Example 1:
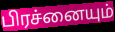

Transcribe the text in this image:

பிரச்னையும்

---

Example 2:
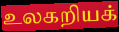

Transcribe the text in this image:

உலகறியக்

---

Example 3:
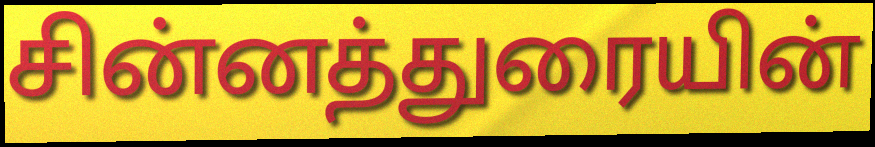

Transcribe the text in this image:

சின்னத்துரையின்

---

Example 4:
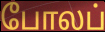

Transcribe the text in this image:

போலப்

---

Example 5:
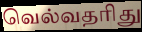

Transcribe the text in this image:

வெல்வதரிது